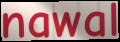
nawal